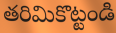
తరిమికొట్టండి